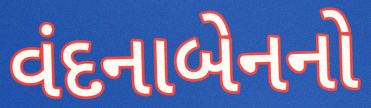
વંદનાબેનનો